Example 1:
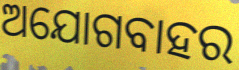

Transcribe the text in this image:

ଅଯୋଗବାହର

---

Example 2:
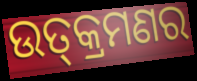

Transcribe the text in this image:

ଉତ୍‍କ୍ରମଣର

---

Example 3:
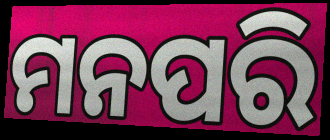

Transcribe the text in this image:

ମନପରି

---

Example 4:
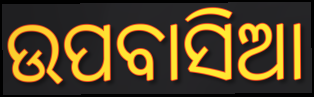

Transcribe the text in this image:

ଉପବାସିଆ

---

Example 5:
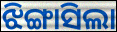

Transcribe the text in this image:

ଝିଙ୍ଗାସିଲା